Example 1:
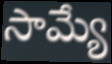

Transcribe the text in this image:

సామ్యే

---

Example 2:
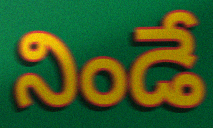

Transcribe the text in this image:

నిండే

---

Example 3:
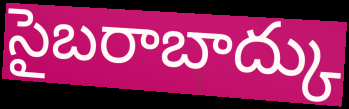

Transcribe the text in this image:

సైబరాబాద్కు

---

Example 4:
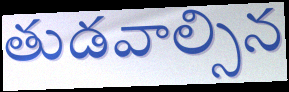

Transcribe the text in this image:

తుడవాల్సిన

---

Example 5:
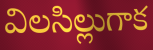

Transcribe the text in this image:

విలసిల్లుగాక